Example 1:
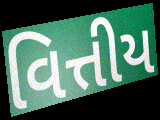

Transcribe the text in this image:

વિત્તીય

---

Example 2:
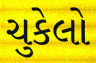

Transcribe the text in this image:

ચુકેલો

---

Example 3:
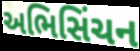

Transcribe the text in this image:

અભિસિંચન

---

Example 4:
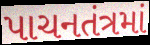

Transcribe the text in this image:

પાચનતંત્રમાં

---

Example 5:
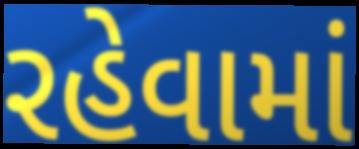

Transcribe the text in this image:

રહેવામાં